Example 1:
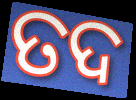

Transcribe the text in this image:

ତଦ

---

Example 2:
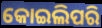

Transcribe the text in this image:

କୋଇଲିପରି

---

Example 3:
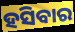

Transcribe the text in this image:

ହସିବାର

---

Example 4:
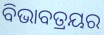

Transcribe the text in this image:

ବିଭାବତ୍ରୟର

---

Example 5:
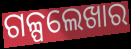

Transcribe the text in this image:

ଗଳ୍ପଲେଖାର